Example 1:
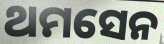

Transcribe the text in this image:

ଥମସେନ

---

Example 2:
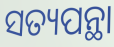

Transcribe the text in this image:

ସତ୍ୟପନ୍ଥା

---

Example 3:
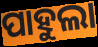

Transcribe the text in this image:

ପାହୁଲା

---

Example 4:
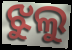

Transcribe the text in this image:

ଝୁଲୁ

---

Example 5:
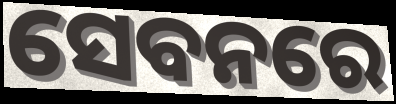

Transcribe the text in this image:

ସେବନରେ